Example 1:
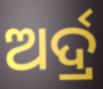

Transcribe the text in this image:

ଅର୍ଦ୍ର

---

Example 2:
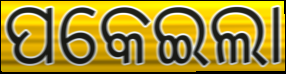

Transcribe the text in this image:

ପକେଇଲା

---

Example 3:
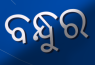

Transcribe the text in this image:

ବନ୍ଧୁର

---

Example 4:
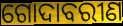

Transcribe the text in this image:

ଗୋଦାବରୀଣ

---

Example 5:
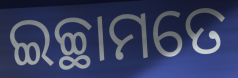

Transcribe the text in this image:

ଇଚ୍ଛାମତେ